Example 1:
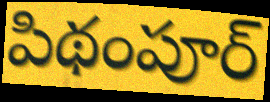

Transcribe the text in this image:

పిథంపూర్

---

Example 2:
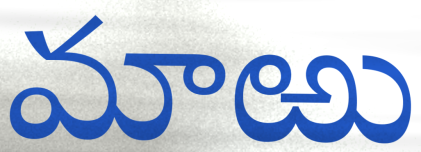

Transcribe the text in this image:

మాఱు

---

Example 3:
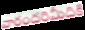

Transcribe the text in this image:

వారందరిమీదికి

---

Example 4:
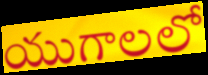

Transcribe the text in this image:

యుగాలలో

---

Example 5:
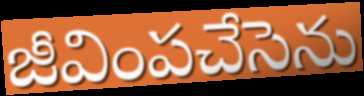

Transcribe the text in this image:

జీవింపచేసెను